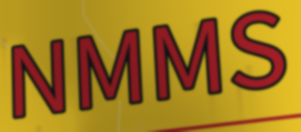
NMMS